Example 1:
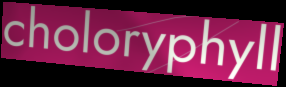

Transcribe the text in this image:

choloryphyll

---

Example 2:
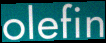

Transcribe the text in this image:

olefin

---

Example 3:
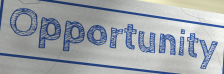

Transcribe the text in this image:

Opportunity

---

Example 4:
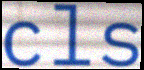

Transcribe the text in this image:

cls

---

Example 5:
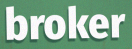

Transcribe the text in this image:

broker